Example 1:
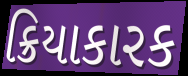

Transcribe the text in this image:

ક્રિયાકારક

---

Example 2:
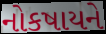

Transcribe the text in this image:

નોકષાયને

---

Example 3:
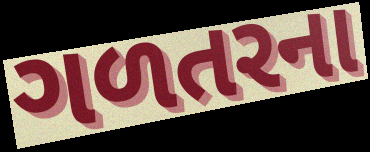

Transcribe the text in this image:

ગળતરના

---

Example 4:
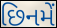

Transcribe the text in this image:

છિનમેં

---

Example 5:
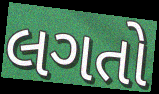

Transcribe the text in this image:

લગતો